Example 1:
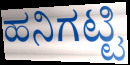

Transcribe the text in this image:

ಹನಿಗಟ್ಟಿ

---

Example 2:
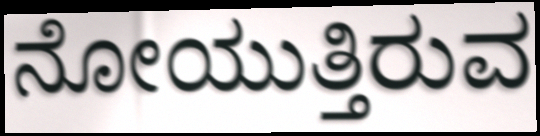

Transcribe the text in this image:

ನೋಯುತ್ತಿರುವ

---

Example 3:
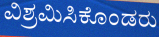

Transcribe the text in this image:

ವಿಶ್ರಮಿಸಿಕೊಂಡರು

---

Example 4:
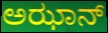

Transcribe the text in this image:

ಅಝಾನ್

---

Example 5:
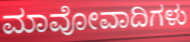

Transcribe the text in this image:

ಮಾವೋವಾದಿಗಳು